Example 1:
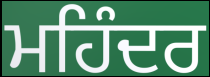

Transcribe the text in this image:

ਮਹਿੰਦਰ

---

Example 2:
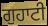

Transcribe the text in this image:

ਗੁਹਾਟੀ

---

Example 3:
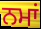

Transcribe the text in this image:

ਨਮਾਂ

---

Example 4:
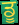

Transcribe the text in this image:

ਡੂ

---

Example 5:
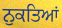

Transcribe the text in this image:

ਨੁਕਤਿਆਂ